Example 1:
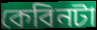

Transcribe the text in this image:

কেবিনটা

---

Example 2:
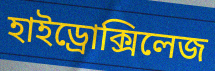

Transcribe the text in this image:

হাইড্রোক্সিলেজ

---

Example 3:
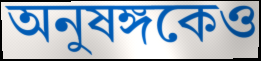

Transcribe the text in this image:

অনুষঙ্গকেও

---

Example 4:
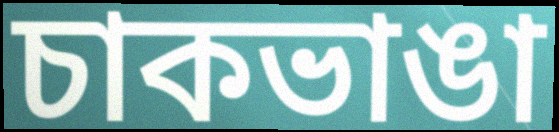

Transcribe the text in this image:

চাকভাঙা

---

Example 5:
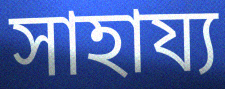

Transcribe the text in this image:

সাহায্য